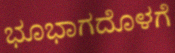
ಭೂಭಾಗದೊಳಗೆ